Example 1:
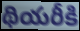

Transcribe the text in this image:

థియరీకి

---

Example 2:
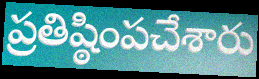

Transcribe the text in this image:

ప్రతిష్ఠింపచేశారు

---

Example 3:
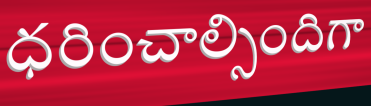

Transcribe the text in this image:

ధరించాల్సిందిగా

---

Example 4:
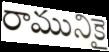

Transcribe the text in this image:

రామునికై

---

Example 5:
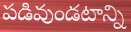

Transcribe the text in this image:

పడివుండటాన్ని